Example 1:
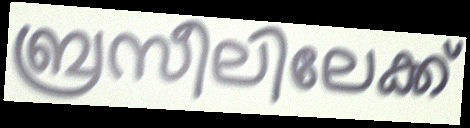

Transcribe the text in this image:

ബ്രസീലിലേക്ക്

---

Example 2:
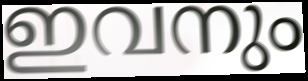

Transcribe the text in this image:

ഇവനും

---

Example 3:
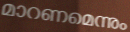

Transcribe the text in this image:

മാറണമെന്നും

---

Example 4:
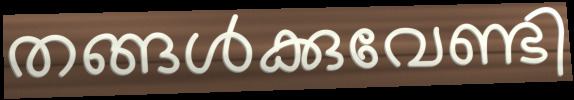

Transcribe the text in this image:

തങ്ങൾക്കുവേണ്ടി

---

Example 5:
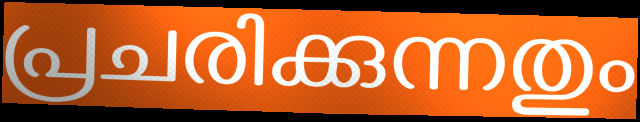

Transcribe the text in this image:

പ്രചരിക്കുന്നതും